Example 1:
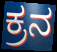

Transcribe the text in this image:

ಕ್ರನ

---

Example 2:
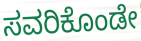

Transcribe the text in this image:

ಸವರಿಕೊಂಡೇ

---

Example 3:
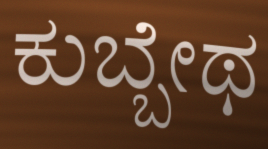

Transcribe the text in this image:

ಕುಬ್ಬೇಥ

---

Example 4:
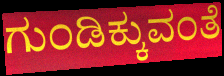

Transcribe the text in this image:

ಗುಂಡಿಕ್ಕುವಂತೆ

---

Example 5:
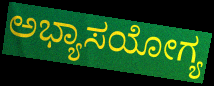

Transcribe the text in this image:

ಅಭ್ಯಾಸಯೋಗ್ಯ